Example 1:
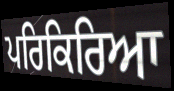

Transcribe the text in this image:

ਪਰਿਕਿਰਿਆ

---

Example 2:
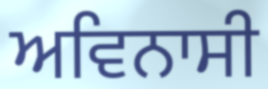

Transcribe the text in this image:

ਅਵਿਨਾਸੀ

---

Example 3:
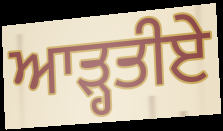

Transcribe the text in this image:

ਆੜ੍ਹਤੀਏ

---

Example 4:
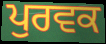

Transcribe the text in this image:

ਪੁਰਵਕ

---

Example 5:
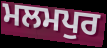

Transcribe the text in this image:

ਮਲਮਪੁਰ